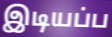
இடியப்ப